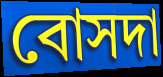
বোসদা